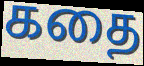
கதை